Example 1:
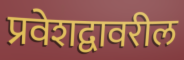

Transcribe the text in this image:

प्रवेशद्वावरील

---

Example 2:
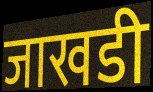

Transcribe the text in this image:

जाखडी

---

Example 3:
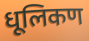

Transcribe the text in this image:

धूलिकण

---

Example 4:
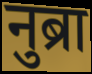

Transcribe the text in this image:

नुब्रा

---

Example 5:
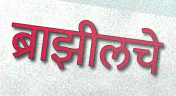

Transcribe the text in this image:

ब्राझीलचे